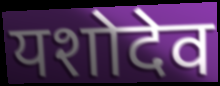
यशोदेव